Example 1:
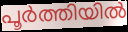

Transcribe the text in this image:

പൂർത്തിയിൽ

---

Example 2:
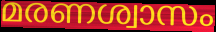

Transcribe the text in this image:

മരണശ്വാസം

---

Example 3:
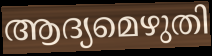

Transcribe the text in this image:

ആദ്യമെഴുതി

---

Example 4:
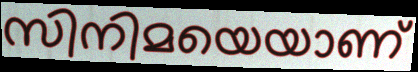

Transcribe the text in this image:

സിനിമയെയാണ്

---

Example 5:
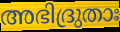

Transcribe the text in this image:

അഭിദ്രുതാഃ